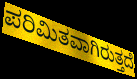
ಪರಿಮಿತವಾಗಿರುತ್ತದೆ